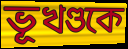
ভূখণ্ডকে